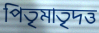
পিতৃমাতৃদত্ত